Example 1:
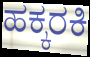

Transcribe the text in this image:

ಹಕ್ಕರಕಿ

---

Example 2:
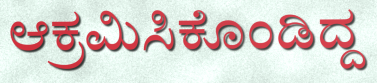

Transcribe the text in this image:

ಆಕ್ರಮಿಸಿಕೊಂಡಿದ್ದ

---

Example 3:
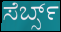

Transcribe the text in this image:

ಸೆರ್ಬ್ಸ್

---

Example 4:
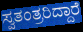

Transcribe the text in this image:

ಸ್ವತಂತ್ರರಿದ್ದಾರೆ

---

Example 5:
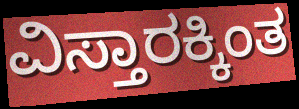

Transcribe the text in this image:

ವಿಸ್ತಾರಕ್ಕಿಂತ